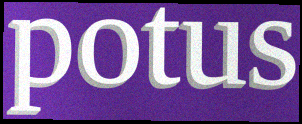
potus